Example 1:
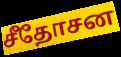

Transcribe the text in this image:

சீதோசன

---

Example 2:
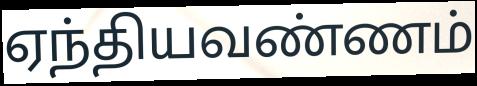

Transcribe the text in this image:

ஏந்தியவண்ணம்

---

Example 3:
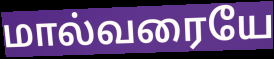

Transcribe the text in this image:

மால்வரையே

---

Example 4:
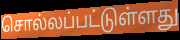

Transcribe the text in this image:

சொல்லப்பட்டுள்ளது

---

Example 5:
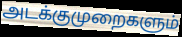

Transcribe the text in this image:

அடக்குமுறைகளும்